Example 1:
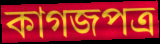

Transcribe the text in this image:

কাগজপত্ৰ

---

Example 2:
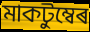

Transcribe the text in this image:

মাকটুম্বেৰ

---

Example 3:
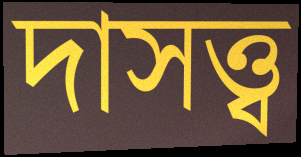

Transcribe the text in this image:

দাসত্ত্ব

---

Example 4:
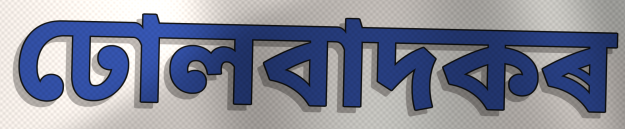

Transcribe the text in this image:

ঢোলবাদকৰ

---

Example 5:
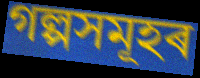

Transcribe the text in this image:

গল্পসমূহৰ